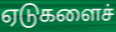
ஏடுகளைச்